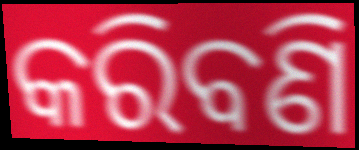
କରିବଣି